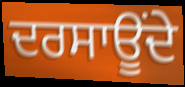
ਦਰਸਾਊਂਦੇ